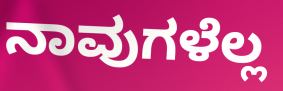
ನಾವುಗಳೆಲ್ಲ